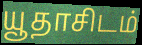
யூதாசிடம்